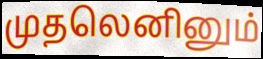
முதலெனினும்